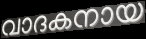
വാദകനായ